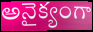
అనైక్యంగా